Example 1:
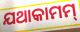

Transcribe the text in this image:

ଯଥାକାମମ୍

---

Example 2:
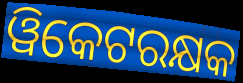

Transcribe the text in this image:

ୱିକେଟରକ୍ଷକ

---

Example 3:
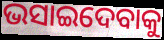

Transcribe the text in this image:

ଭସାଇଦେବାକୁ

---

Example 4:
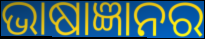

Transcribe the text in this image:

ଭାଷାଜ୍ଞାନର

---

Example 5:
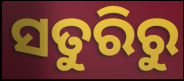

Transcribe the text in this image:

ସତୁରିରୁ